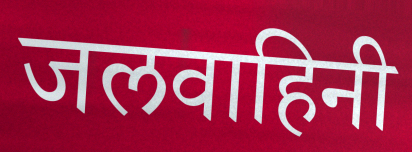
जलवाहिनी